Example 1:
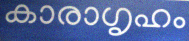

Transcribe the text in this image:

കാരാഗൃഹം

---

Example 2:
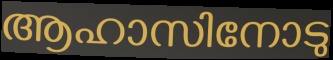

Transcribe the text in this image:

ആഹാസിനോടു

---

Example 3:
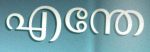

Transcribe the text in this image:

എന്തേ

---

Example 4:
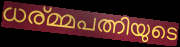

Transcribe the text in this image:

ധര്മ്മപത്നിയുടെ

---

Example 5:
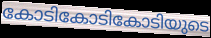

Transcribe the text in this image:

കോടികോടികോടിയുടെ